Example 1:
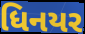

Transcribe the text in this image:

ધિનયર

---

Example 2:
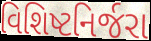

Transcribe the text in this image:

વિશિષ્ટનિર્જરા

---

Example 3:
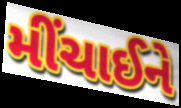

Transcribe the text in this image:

મીંચાઈને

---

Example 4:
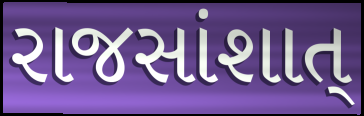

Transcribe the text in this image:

રાજસાંશાત્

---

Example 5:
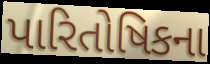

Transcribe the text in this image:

પારિતોષિકના